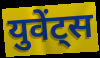
युवेंट्स